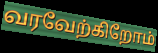
வரவேற்கிறோம்